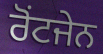
ਰੋਂਟਜੇਨ